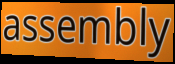
assembly